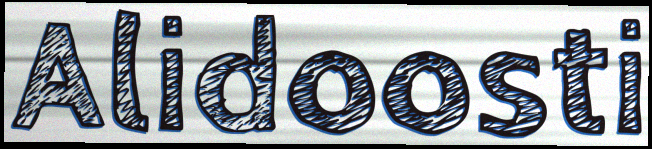
Alidoosti